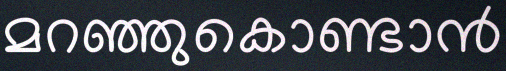
മറഞ്ഞുകൊണ്ടാൻ